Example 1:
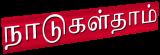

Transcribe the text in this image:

நாடுகள்தாம்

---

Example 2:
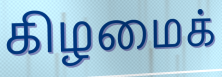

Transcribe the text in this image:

கிழமைக்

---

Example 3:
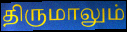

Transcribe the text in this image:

திருமாலும்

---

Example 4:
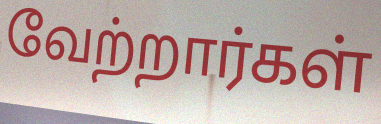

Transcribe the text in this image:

வேற்றார்கள்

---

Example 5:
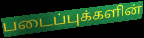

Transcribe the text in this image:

படைப்புக்களின்